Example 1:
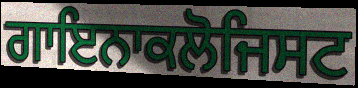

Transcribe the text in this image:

ਗਾਇਨਾਕਲੋਜਿਸਟ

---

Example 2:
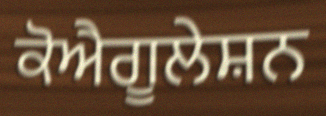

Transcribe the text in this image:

ਕੋਐਗੂਲੇਸ਼ਨ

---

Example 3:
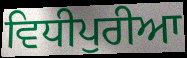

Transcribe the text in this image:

ਵਿਧੀਪੁਰੀਆ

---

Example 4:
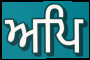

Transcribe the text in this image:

ਅਪਿ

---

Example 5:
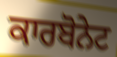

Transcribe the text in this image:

ਕਾਰਬੋਨੇਟ